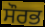
ਸੌਰਭ